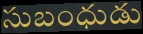
సుబంధుడు